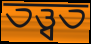
তত্ত্বত